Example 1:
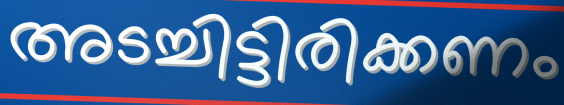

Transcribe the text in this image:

അടച്ചിട്ടിരിക്കണം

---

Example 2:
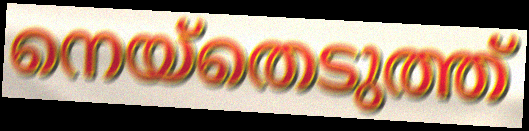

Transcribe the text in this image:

നെയ്തെടുത്ത്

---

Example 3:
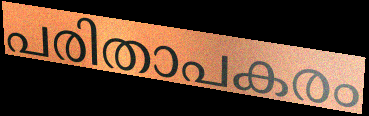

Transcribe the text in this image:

പരിതാപകരം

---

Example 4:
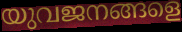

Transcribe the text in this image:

യുവജനങ്ങളെ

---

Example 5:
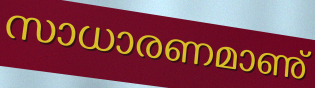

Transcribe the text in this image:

സാധാരണമാണു്